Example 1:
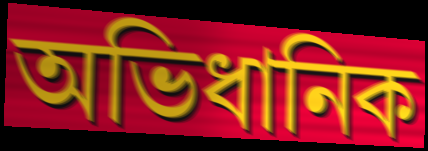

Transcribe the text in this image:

অভিধানিক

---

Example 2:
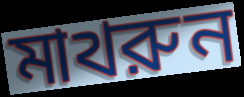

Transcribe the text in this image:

মাথৰুন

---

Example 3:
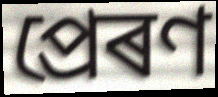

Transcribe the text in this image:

প্ৰেৰণ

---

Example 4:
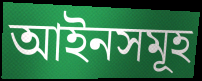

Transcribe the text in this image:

আইনসমূহ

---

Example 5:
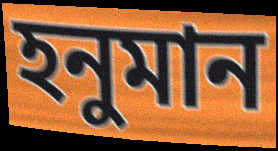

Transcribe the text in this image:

হনুমান